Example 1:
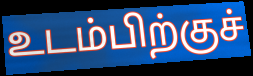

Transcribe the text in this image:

உடம்பிற்குச்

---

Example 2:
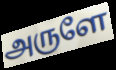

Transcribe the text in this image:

அருளே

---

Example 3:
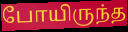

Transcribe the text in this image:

போயிருந்த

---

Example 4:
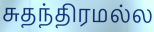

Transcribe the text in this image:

சுதந்திரமல்ல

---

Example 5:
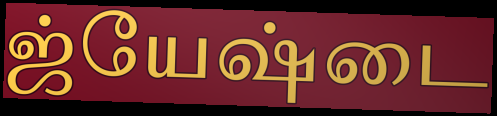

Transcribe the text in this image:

ஜ்யேஷ்டை